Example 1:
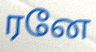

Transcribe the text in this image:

ரனே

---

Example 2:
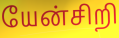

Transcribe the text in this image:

யேன்சிறி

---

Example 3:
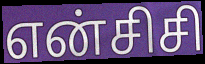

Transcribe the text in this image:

என்சிசி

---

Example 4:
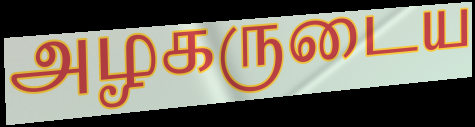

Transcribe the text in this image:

அழகருடைய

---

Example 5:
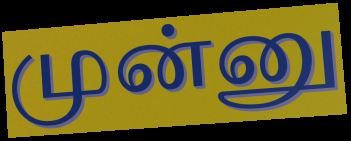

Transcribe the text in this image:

முன்னு